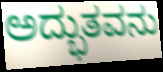
ಅದ್ಭುತವನು